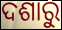
ଦଶାରୁ